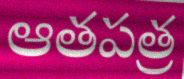
ఆతపత్ర